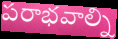
పరాభవాల్ని